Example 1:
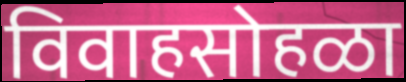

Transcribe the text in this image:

विवाहसोहळा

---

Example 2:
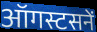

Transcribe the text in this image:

ऑगस्टसनें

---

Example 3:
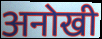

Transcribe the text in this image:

अनोखी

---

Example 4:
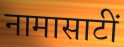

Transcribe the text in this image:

नामासाटीं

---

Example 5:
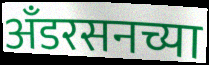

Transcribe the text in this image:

अँडरसनच्या